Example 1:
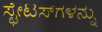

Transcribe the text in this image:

ಸ್ಟೇಟಸ್‌ಗಳನ್ನು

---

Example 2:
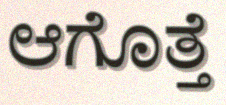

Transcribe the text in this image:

ಆಗೊತ್ತೆ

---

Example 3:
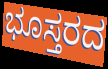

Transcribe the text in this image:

ಭೂಸ್ತರದ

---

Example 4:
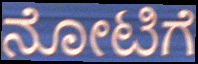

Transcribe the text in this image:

ನೋಟಿಗೆ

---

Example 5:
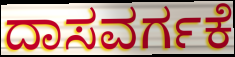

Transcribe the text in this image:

ದಾಸವರ್ಗಕೆ